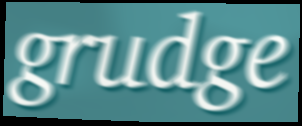
grudge